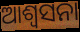
ଆଶ୍ୱସନା